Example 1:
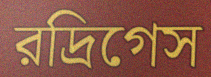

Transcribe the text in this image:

রদ্রিগেস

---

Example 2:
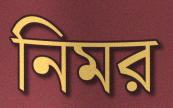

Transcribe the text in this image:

নিমর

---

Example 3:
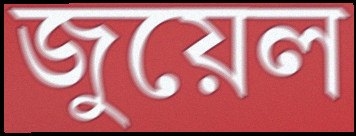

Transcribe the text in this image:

জুয়েল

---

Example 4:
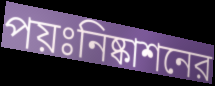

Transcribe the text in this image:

পয়ঃনিষ্কাশনের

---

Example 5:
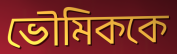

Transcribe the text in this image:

ভৌমিককে